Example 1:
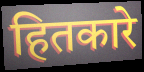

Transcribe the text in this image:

हितकारे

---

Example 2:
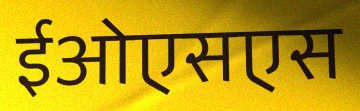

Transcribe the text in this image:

ईओएसएस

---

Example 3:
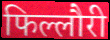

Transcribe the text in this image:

फिल्लौरी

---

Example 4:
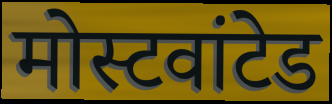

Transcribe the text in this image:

मोस्टवांटेड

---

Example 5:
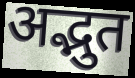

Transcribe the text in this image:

अद्भुत